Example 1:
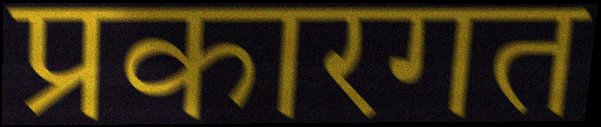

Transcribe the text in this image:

प्रकारगत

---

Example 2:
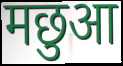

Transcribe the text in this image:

मछुआ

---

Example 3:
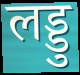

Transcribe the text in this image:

लड्डु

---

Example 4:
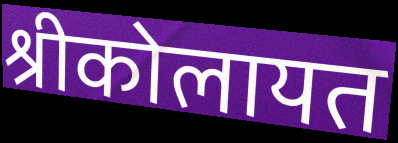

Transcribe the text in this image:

श्रीकोलायत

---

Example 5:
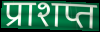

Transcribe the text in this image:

प्राशप्त